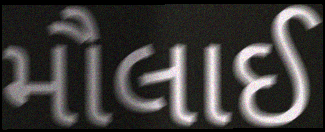
મૌલાઈ